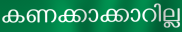
കണക്കാക്കാറില്ല